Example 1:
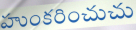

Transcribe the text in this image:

హుంకరించుచు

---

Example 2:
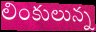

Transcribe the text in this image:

లింకులున్న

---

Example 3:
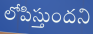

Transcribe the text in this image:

లోపిస్తుందని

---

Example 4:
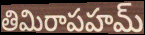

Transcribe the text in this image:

తిమిరాపహమ్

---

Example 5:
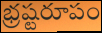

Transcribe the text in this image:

భ్రష్టరూపం